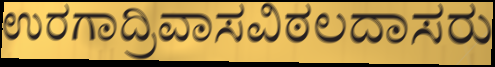
ಉರಗಾದ್ರಿವಾಸವಿಠಲದಾಸರು